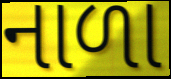
નાળા